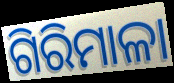
ଗିରିମାଳା